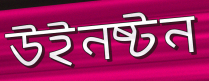
উইনষ্টন